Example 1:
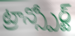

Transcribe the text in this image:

ట్రాన్స్పోర్ట్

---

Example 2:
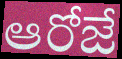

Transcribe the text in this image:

ఆరోజే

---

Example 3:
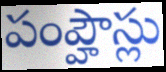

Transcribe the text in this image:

పంప్హౌస్లు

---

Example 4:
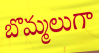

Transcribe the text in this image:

బొమ్మలుగా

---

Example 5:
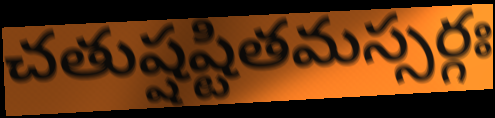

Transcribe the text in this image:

చతుష్షష్టితమస్సర్గః